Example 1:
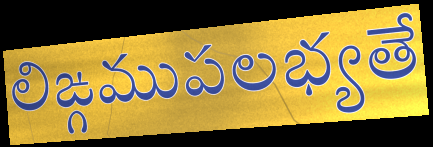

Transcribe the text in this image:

లిఙ్గముపలభ్యతే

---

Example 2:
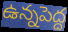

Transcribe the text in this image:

ఉన్నపెద్ద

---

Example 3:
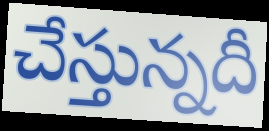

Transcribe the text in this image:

చేస్తున్నదీ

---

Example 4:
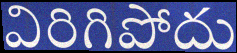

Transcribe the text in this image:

విరిగిపోదు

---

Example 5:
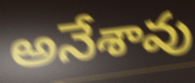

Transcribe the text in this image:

అనేశావు